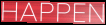
HAPPEN